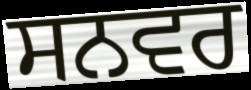
ਸਨਵਰ